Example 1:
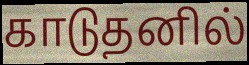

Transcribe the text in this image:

காடுதனில்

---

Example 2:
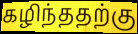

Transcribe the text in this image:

கழிந்ததற்கு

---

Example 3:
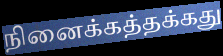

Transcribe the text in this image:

நினைக்கத்தக்கது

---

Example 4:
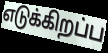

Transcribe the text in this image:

எடுக்கிறப்ப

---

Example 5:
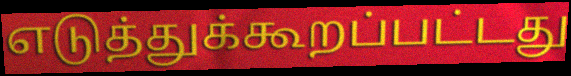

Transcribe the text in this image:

எடுத்துக்கூறப்பட்டது